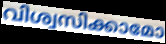
വിശ്വസിക്കാമോ